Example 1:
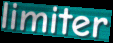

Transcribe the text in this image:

limiter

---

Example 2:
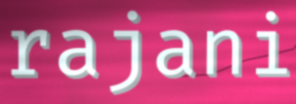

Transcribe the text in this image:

rajani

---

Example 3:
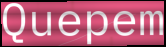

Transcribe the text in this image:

Quepem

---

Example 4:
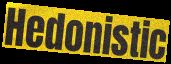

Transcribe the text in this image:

Hedonistic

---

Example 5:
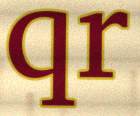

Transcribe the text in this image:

qr